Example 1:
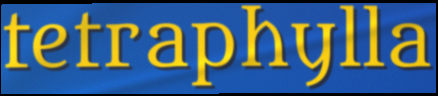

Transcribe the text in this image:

tetraphylla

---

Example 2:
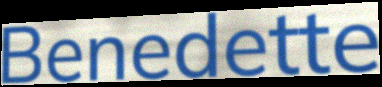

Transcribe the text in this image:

Benedette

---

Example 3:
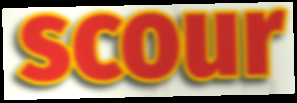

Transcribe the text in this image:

scour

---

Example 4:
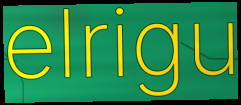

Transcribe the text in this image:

elrigu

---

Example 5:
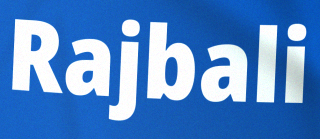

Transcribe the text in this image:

Rajbali